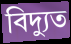
বিদ্যুত